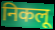
निकलू